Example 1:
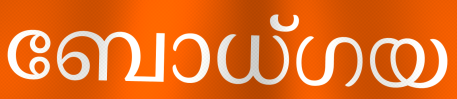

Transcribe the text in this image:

ബോധ്ഗയ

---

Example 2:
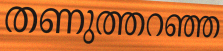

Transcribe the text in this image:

തണുത്തറഞ്ഞ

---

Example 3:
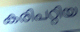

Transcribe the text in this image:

കരിപറ്റിയ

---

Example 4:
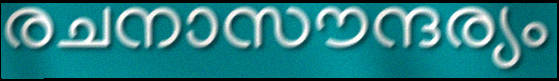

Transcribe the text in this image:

രചനാസൗന്ദര്യം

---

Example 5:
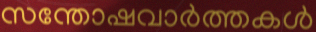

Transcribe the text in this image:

സന്തോഷവാർത്തകൾ